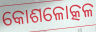
କୋଶଳୋତ୍କଳ